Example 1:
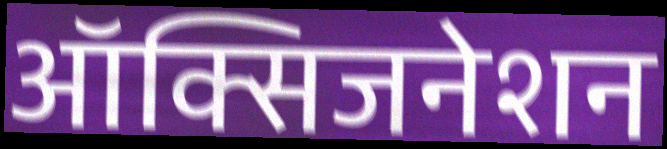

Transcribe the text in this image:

ऑक्सिजनेशन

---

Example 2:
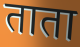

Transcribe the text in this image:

ताता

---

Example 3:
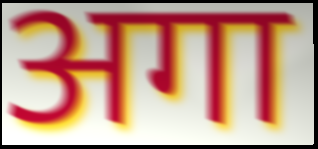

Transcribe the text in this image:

अगा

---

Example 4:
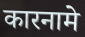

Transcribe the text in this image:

कारनामे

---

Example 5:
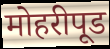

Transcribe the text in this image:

मोहरीपूड